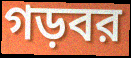
গড়বর